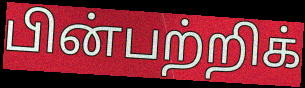
பின்பற்றிக்